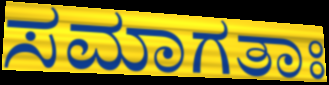
ಸಮಾಗತಾಃ